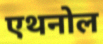
एथनोल